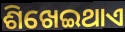
ଶିଖେଇଥାଏ